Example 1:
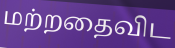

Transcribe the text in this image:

மற்றதைவிட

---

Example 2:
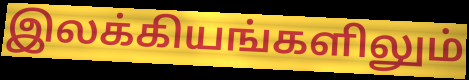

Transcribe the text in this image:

இலக்கியங்களிலும்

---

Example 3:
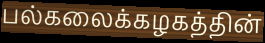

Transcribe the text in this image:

பல்கலைக்கழகத்தின்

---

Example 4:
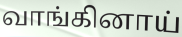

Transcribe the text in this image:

வாங்கினாய்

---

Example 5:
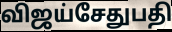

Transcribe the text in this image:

விஜய்சேதுபதி